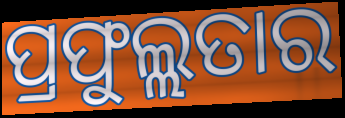
ପ୍ରଫୁଲ୍ଲତାର